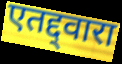
एतद्द्वारा